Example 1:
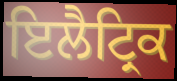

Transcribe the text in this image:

ਇਲੈਟ੍ਰਿਕ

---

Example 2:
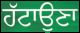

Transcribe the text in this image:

ਹੱਟਾਉਣਾ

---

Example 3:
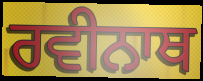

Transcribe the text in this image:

ਰਵੀਨਾਥ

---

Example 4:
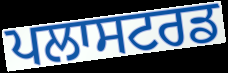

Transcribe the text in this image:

ਪਲਾਸਟਰਡ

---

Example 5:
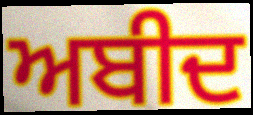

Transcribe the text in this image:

ਅਬੀਦ